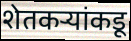
शेतकऱ्यांकडू